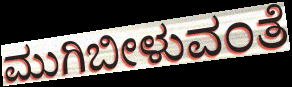
ಮುಗಿಬೀಳುವಂತೆ